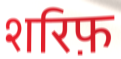
शरिफ़